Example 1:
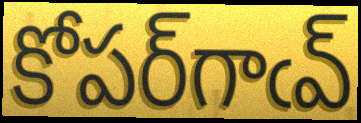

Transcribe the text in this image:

కోపర్‌గాఁవ్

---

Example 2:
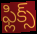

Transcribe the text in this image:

ఫ్లిక్స్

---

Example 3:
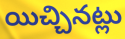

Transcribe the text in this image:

యిచ్చినట్లు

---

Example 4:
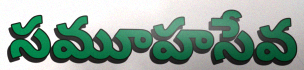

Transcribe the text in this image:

సమూహసేవ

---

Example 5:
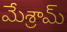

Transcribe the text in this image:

మేశ్రామ్